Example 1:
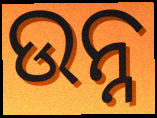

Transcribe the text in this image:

ଉନ୍ନ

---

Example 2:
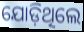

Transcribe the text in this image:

ଯୋଡ଼ିଥିଲେ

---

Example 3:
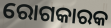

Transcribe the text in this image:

ରୋଗକାରକ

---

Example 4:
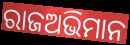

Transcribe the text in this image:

ରାଜଅଭିମାନ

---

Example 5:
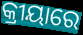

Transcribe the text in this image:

କ୍ରୀୟାରେ